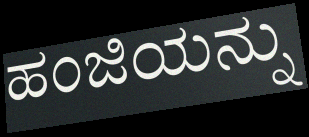
ಹಂಜಿಯನ್ನು